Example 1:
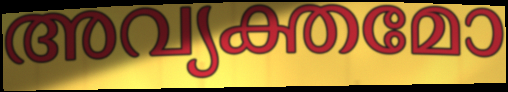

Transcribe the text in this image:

അവ്യക്തമോ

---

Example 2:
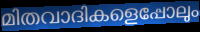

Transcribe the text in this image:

മിതവാദികളെപ്പോലും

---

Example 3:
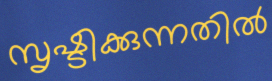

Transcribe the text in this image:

സൃഷ്ടിക്കുന്നതിൽ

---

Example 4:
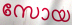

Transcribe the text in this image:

സോയ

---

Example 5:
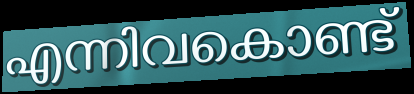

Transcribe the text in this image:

എന്നിവകൊണ്ട്